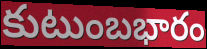
కుటుంబభారం